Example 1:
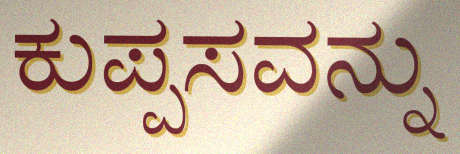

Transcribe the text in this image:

ಕುಪ್ಪಸವನ್ನು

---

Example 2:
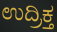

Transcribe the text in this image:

ಉದ್ರಿಕ್ತ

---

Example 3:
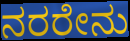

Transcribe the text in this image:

ನರರೇನು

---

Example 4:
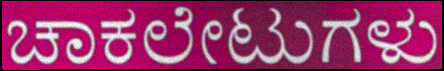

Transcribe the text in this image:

ಚಾಕಲೇಟುಗಳು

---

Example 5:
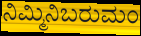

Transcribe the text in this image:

ನಿಮ್ಮಿನಿಬರುಮಂ